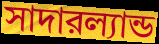
সাদারল্যান্ড